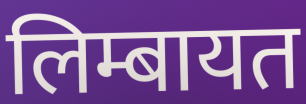
लिम्बायत